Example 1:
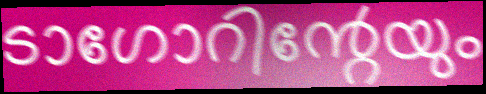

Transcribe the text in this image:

ടാഗോറിന്റേയും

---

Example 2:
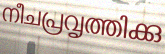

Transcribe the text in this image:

നീചപ്രവൃത്തിക്കു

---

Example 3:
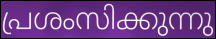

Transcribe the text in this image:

പ്രശംസിക്കുന്നു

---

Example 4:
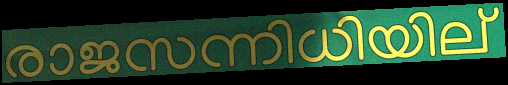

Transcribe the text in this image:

രാജസന്നിധിയില്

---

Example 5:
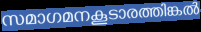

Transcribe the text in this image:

സമാഗമനകൂടാരത്തിങ്കൽ